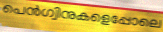
പെൻഗ്വിനുകളെപ്പോലെ